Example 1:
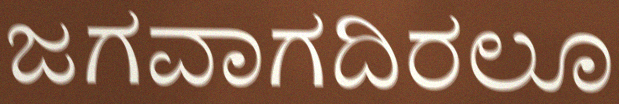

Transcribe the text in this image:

ಜಗವಾಗದಿರಲೂ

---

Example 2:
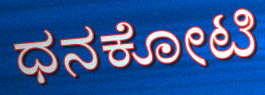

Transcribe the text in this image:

ಧನಕೋಟಿ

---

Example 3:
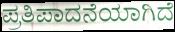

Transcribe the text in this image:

ಪ್ರತಿಪಾದನೆಯಾಗಿದೆ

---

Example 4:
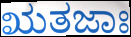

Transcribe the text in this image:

ಋತಜಾಃ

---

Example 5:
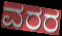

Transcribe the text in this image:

ವರರ